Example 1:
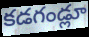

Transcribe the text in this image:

కడగండ్లూ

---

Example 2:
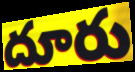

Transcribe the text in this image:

దూరు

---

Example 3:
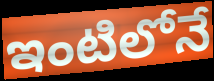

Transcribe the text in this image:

ఇంటిలోనే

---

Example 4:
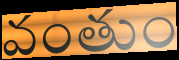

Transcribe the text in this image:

వంతుం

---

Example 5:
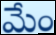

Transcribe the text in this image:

మేం